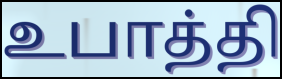
உபாத்தி